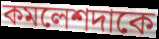
কমলেশদাকে